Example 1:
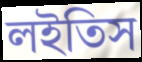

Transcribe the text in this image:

লইতিস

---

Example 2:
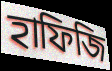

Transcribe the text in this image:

হাফিজি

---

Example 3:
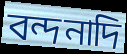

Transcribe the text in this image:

বন্দনাদি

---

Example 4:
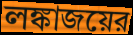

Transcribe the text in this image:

লঙ্কাজয়ের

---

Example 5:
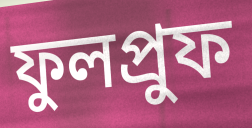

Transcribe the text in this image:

ফুলপ্রুফ